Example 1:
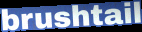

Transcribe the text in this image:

brushtail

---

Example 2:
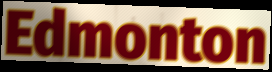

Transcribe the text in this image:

Edmonton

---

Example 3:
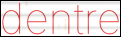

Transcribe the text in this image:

dentre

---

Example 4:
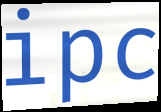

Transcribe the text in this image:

ipc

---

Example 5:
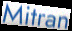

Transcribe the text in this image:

Mitran